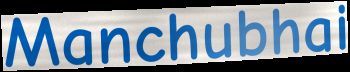
Manchubhai